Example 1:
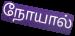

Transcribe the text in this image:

நோயால்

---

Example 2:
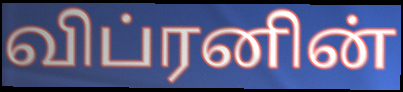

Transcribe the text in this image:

விப்ரனின்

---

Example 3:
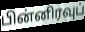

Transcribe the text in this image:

பின்னிரவுப்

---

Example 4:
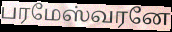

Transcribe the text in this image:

பரமேஸ்வரனே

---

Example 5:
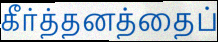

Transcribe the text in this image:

கீர்த்தனத்தைப்